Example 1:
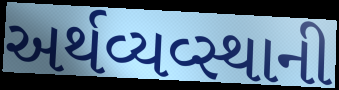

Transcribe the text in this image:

અર્થવ્યવ્સ્થાની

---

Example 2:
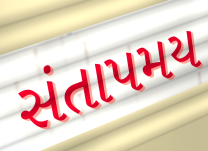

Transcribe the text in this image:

સંતાપમય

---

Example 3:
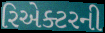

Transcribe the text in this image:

રિએક્ટરની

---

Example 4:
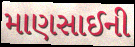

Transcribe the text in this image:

માણસાઈની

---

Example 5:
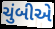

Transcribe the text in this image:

ચુંબીએ